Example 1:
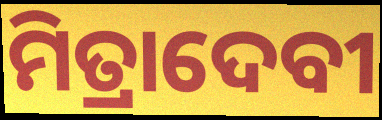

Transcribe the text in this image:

ମିତ୍ରାଦେବୀ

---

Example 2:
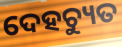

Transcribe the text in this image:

ଦେହଚ୍ୟୁତ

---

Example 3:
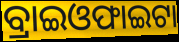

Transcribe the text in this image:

ବ୍ରାଇଓଫାଇଟା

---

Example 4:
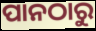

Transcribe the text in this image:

ପାନଠାରୁ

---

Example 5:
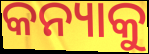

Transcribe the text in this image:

କନ୍ୟାକୁ